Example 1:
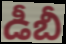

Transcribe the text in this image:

డీబీ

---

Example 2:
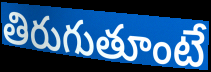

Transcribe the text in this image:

తిరుగుతూంటే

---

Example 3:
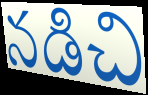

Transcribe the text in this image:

నడిచి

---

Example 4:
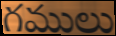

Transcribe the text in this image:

గములు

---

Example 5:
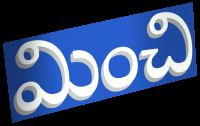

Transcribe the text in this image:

మించి